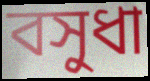
বসুধা